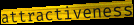
attractiveness